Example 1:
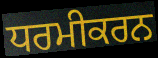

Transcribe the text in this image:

ਧਰਮੀਕਰਨ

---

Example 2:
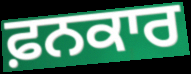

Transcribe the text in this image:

ਫ਼ਨਕਾਰ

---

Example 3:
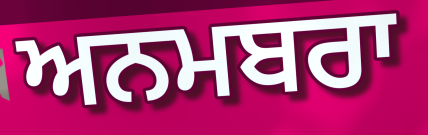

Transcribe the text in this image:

ਅਨਮਬਰਾ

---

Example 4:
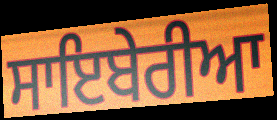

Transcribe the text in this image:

ਸਾਇਬੇਰੀਆ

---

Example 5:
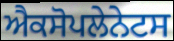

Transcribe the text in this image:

ਐਕਸੋਪਲੇਨੇਟਸ